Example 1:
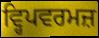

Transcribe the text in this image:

ਵ੍ਹਿਪਵਰਮਜ਼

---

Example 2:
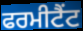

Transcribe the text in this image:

ਫਰਮੀਟੈਂਟ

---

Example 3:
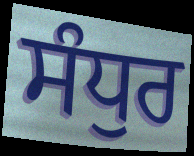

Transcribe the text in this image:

ਸੰਧੁਰ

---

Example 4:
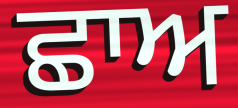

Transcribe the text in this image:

ਛਾਅ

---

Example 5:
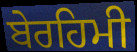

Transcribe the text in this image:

ਬੇਰਹਿਮੀ